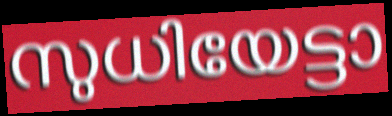
സുധിയേട്ടാ